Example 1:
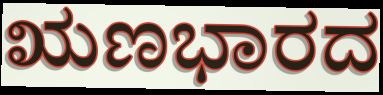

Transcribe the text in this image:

ಋಣಭಾರದ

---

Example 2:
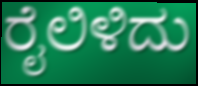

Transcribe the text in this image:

ರೈಲಿಳಿದು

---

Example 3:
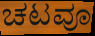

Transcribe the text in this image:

ಚಟವೂ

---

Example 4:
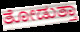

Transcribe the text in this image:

ತೋಡುತ್ತಾ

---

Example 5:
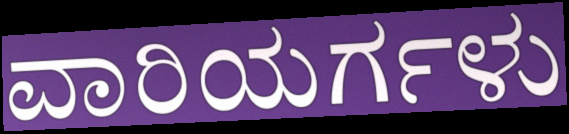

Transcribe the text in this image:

ವಾರಿಯರ್ಗಳು